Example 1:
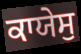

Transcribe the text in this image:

ਕਾਯੇਸੁ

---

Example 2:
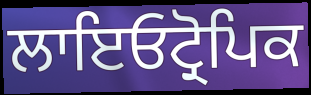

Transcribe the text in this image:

ਲਾਇਓਟ੍ਰੋਪਿਕ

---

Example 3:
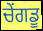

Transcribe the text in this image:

ਚੇਂਗਡੂ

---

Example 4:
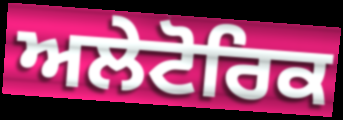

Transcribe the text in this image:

ਅਲੇਟੋਰਿਕ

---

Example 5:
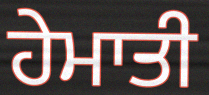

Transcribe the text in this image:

ਹੇਮਾਤੀ